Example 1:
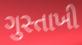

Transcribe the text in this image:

ગુસ્તાખી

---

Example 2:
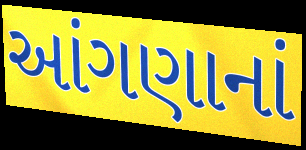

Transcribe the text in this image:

આંગણાનાં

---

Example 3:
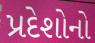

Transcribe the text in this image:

પ્રદેશોનો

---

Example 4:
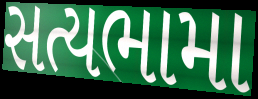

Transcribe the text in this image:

સત્યભામા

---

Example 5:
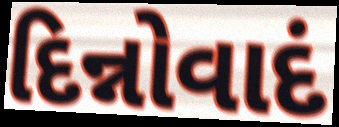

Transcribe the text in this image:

દિન્નોવાદં